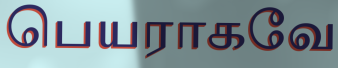
பெயராகவே